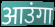
आउंगा